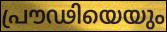
പ്രൗഢിയെയും